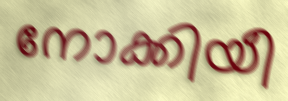
നോക്കിയീ